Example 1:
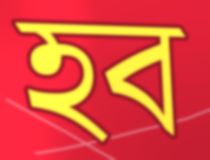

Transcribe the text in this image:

হব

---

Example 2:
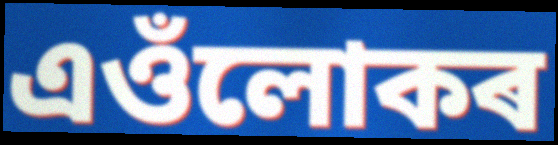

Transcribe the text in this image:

এওঁলোকৰ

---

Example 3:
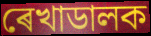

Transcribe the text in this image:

ৰেখাডালক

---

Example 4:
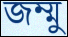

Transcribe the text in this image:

জম্মু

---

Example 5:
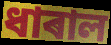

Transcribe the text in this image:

ধাৰাল